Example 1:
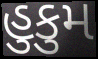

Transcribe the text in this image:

હુકુમ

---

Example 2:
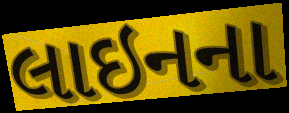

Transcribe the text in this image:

લાઇનના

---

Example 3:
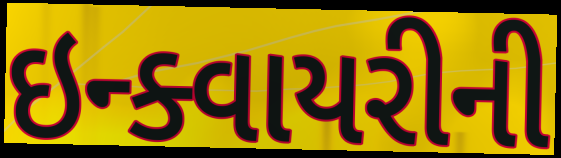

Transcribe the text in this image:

ઇન્ક્વાયરીની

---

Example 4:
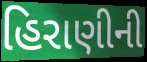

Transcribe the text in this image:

હિરાણીની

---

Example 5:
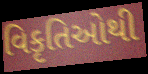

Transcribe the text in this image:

વિકૃતિઓથી